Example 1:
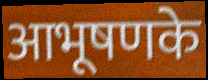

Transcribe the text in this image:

आभूषणके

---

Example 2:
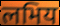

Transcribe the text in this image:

लभिय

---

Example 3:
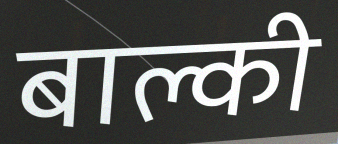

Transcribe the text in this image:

बाल्की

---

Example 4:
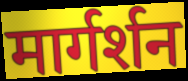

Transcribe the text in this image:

मार्गर्शन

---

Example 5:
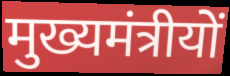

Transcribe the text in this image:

मुख्यमंत्रीयों